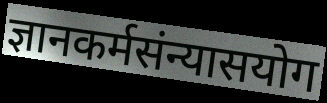
ज्ञानकर्मसंन्यासयोग